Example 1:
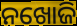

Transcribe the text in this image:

ନଖୋଜି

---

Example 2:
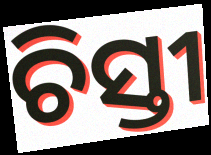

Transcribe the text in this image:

ଚିସ୍ତୀ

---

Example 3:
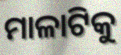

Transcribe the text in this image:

ମାଳାଟିକୁ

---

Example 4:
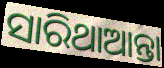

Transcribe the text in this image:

ସାରିଥାଆନ୍ତା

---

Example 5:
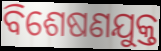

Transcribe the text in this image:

ବିଶେଷଣଯୁକ୍ତ